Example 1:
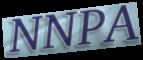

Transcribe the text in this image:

NNPA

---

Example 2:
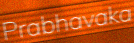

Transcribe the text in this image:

Prabhavaka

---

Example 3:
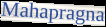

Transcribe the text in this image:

Mahapragna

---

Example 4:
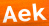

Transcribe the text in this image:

Aek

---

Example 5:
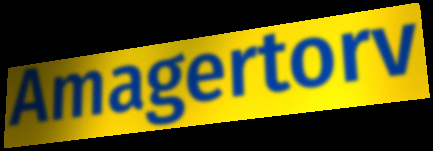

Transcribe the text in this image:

Amagertorv